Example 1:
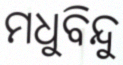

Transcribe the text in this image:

ମଧୁବିନ୍ଦୁ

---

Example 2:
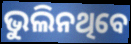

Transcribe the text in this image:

ଭୁଲିନଥିବେ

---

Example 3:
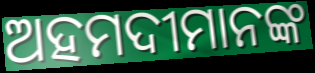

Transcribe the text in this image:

ଅହମଦୀମାନଙ୍କ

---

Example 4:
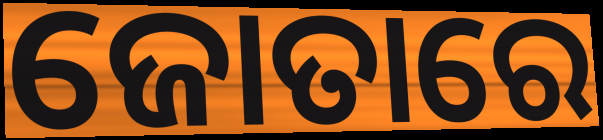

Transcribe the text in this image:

ଜୋତାରେ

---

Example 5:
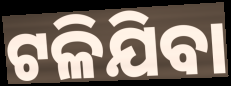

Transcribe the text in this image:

ଟଳିଯିବା